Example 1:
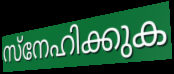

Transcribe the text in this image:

സ്നേഹിക്കുക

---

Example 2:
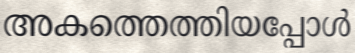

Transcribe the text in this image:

അകത്തെത്തിയപ്പോൾ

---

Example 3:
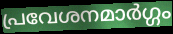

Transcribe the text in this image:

പ്രവേശനമാർഗ്ഗം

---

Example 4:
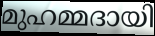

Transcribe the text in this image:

മുഹമ്മദായി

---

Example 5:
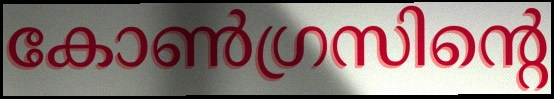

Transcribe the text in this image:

കോൺഗ്രസിന്റെ